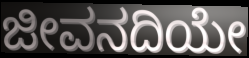
ಜೀವನದಿಯೇ